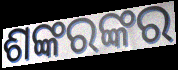
ଶଙ୍କରଙ୍କର